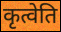
कृत्वेति